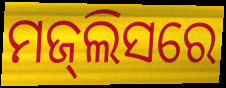
ମଜ୍‍ଲିସରେ